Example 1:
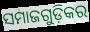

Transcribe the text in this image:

ସମାଜଗୁଡ଼ିକର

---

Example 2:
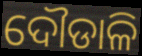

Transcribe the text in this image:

ଦୌଡାଳି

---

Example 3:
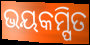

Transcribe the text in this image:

ଭୟକମ୍ପିତ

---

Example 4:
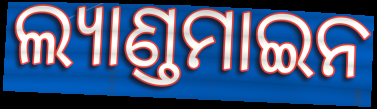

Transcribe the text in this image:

ଲ୍ୟାଣ୍ଡମାଇନ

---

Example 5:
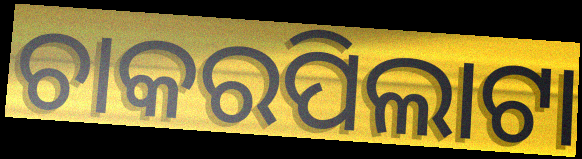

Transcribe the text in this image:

ଚାକରପିଲାଟା